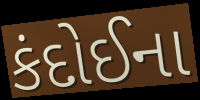
કંદોઈના